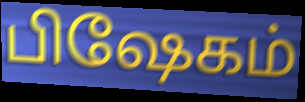
பிஷேகம்